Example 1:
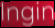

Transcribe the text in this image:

Ingin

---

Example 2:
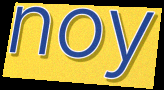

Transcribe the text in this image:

noy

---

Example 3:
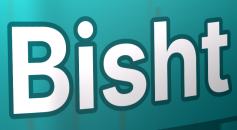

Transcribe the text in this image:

Bisht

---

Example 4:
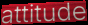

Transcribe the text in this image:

attitude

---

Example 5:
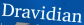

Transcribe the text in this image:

Dravidian